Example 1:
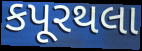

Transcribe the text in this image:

કપૂરથલા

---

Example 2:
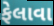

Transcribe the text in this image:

ફેલાવા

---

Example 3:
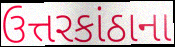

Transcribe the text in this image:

ઉત્તરકાંઠાના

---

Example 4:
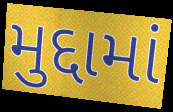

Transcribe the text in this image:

મુદ્દામાં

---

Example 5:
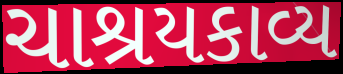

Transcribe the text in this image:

ચાશ્રયકાવ્ય